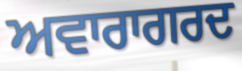
ਅਵਾਰਾਗਰਦ